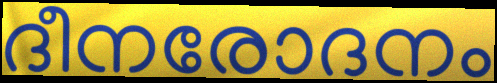
ദീനരോദനം